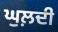
ਘੁਲ਼ਦੀ